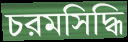
চরমসিদ্ধি